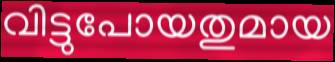
വിട്ടുപോയതുമായ